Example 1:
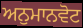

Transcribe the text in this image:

ਅਨੁਮਾਨਵੋਟ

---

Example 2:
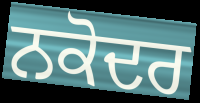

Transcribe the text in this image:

ਨਕੋਦਰ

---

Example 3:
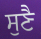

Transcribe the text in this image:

ਸੁਣੈ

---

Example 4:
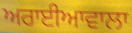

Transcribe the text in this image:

ਅਰਾਈਆਵਾਲਾ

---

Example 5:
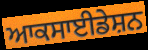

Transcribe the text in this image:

ਆਕਸਾਈਡੇਸ਼ਨ